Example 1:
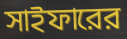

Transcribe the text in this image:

সাইফারের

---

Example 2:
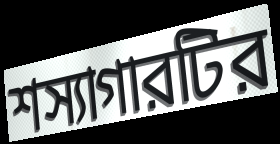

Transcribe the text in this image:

শস্যাগারটির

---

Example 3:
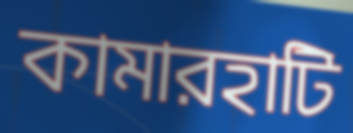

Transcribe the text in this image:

কামারহাটি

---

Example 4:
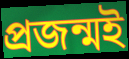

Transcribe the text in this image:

প্রজন্মই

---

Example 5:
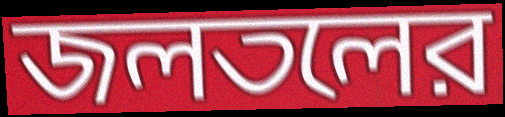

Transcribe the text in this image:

জলতলের